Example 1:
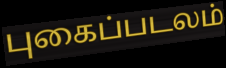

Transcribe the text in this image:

புகைப்படலம்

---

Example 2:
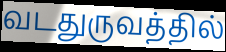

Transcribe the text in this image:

வடதுருவத்தில்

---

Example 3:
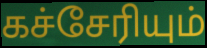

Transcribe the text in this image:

கச்சேரியும்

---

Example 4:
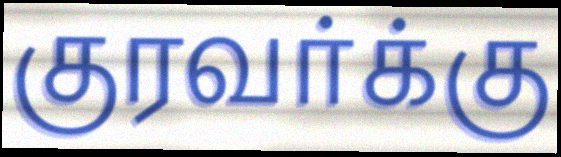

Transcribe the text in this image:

குரவர்க்கு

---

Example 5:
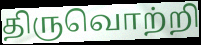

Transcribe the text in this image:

திருவொற்றி